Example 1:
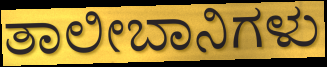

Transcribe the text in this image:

ತಾಲೀಬಾನಿಗಳು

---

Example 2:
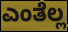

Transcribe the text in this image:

ಎಂತೆಲ್ಲ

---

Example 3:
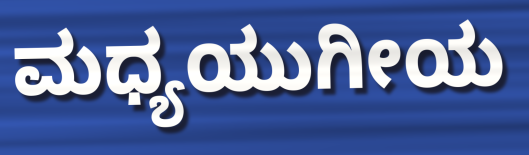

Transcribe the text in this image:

ಮಧ್ಯಯುಗೀಯ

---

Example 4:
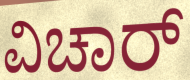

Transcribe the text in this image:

ವಿಚಾರ್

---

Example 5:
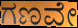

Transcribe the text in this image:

ಗಣವೇ